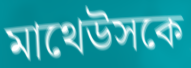
মাথেউসকে